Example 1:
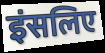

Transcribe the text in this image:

इंसलिए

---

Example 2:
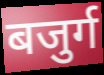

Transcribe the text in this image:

बजुर्ग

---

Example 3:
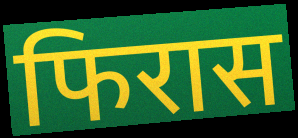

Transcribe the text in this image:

फिरास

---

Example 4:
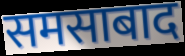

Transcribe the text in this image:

समसाबाद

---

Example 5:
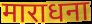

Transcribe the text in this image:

माराधना